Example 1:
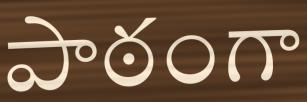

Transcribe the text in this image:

పాఠంగా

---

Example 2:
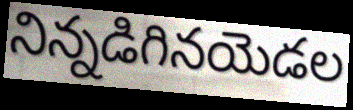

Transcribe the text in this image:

నిన్నడిగినయెడల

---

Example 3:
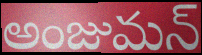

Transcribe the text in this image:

అంజుమన్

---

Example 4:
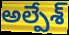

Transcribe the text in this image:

అల్పేశ్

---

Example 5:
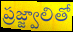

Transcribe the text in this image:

ప్రజ్జ్వాలితో